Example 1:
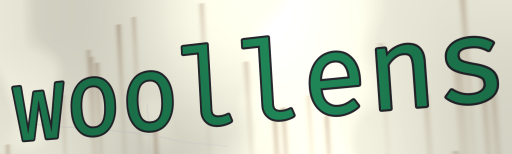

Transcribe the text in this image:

woollens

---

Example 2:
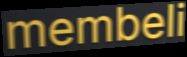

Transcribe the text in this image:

membeli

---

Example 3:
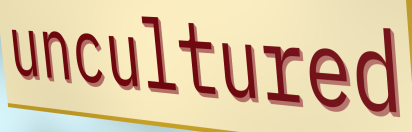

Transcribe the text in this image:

uncultured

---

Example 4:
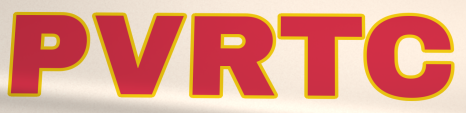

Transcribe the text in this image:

PVRTC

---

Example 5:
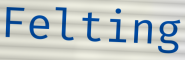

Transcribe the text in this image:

Felting